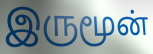
இருமூன்